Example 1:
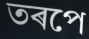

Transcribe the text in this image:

তৰপে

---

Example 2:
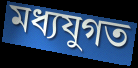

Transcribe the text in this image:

মধ্যযুগত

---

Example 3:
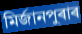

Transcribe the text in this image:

মিৰ্জানপুৰাৰ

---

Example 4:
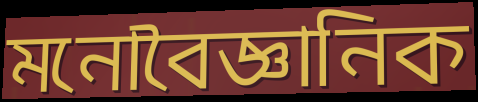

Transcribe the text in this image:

মনোবৈজ্ঞানিক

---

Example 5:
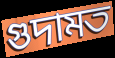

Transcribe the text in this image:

গুদামত